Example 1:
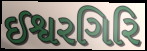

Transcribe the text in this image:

ઈશ્વરગિરિ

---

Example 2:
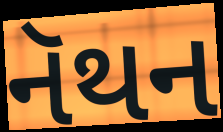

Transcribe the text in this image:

નૅથન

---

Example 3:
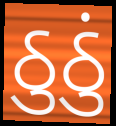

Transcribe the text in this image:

ઠુઠું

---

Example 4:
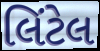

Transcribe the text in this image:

લિંટેલ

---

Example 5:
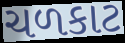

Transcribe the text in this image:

ચળકાટ